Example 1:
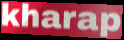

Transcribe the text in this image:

kharap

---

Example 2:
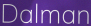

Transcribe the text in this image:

Dalman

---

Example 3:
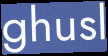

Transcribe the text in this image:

ghusl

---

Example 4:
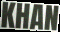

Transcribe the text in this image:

KHAN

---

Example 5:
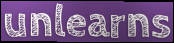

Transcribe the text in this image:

unlearns